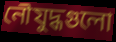
নৌযুদ্ধগুলো